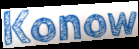
Konow